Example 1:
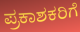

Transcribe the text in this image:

ಪ್ರಕಾಶಕರಿಗೆ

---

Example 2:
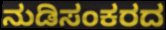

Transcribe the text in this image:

ನುಡಿಸಂಕರದ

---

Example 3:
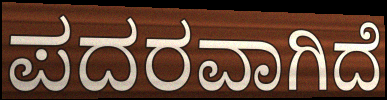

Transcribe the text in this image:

ಪದರವಾಗಿದೆ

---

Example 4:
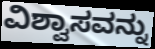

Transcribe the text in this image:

ವಿಶ್ವಾಸವನ್ನು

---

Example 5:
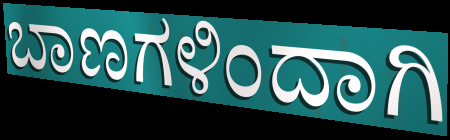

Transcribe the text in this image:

ಬಾಣಗಳಿಂದಾಗಿ